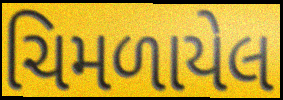
ચિમળાયેલ